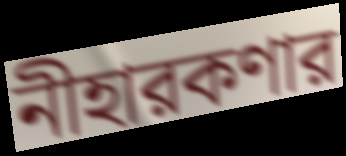
নীহারকণার